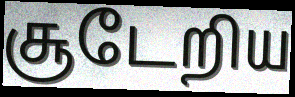
சூடேறிய